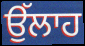
ਉੱਲਾਹ